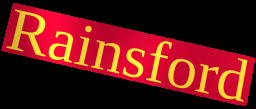
Rainsford